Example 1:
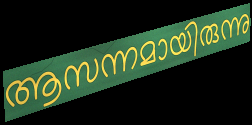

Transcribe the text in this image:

ആസന്നമായിരുന്നു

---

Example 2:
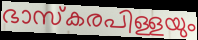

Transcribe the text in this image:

ഭാസ്കരപിള്ളയും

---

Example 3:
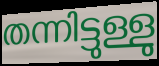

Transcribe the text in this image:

തന്നിട്ടുള്ളു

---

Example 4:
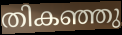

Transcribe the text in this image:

തികഞ്ഞു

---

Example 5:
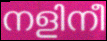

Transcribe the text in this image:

നളിനീ